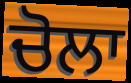
ਚੋਲਾ